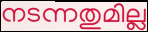
നടന്നതുമില്ല